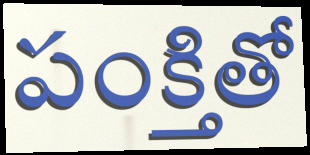
పంక్తితో